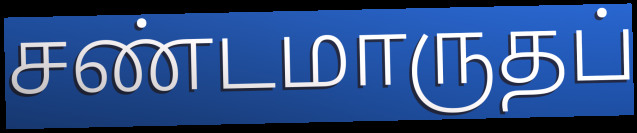
சண்டமாருதப்